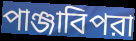
পাঞ্জাবিপরা